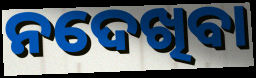
ନଦେଖିବା